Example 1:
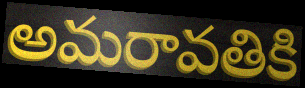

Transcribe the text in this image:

అమరావతికి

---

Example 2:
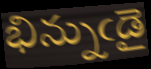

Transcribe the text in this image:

భిన్నుఁడై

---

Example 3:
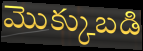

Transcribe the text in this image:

మొక్కుబడి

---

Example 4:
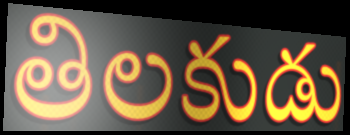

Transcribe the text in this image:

తిలకుడు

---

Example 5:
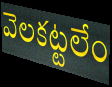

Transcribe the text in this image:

వెలకట్టలేం